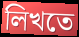
লিখতে